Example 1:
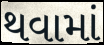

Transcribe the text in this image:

થવામાં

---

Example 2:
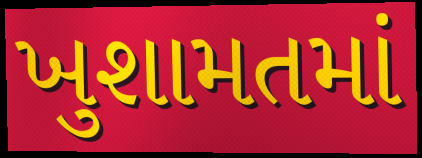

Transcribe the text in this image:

ખુશામતમાં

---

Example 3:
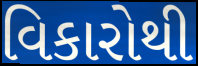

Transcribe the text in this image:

વિકારોથી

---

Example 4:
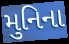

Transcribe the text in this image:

મુનિના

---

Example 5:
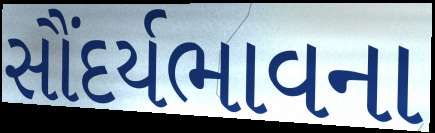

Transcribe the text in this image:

સૌંદર્યભાવના